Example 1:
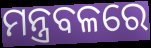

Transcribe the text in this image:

ମନ୍ତ୍ରବଳରେ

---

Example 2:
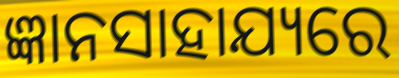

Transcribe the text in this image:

ଜ୍ଞାନସାହାଯ୍ୟରେ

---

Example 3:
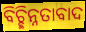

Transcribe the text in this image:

ବିଚ୍ଛିନ୍ନତାବାଦ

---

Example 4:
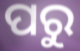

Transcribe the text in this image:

ପରୁ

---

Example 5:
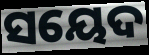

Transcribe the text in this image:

ସୟେଦ